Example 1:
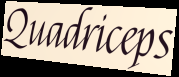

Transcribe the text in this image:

Quadriceps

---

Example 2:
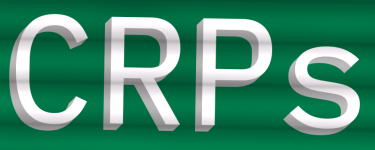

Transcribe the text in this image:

CRPs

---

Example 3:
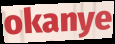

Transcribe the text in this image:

okanye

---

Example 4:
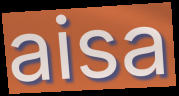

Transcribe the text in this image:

aisa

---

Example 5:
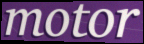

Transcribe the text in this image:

motor